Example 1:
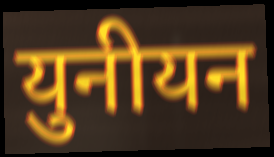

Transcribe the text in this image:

युनीयन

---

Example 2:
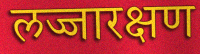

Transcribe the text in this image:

लज्जारक्षण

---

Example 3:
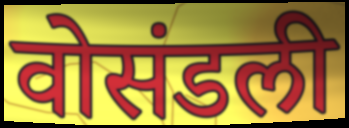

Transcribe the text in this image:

वोसंडली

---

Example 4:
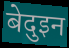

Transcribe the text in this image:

बेदुइन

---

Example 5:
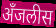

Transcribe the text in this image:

अँजलीस